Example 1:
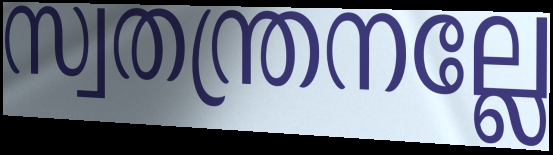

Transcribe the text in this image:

സ്വതന്ത്രനല്ലേ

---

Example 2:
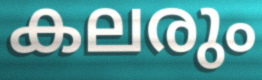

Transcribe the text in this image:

കലരും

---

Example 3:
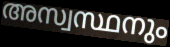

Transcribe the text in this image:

അസ്വസ്ഥനും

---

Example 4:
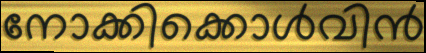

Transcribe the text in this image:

നോക്കിക്കൊൾവിൻ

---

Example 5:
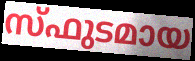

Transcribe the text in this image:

സ്ഫുടമായ